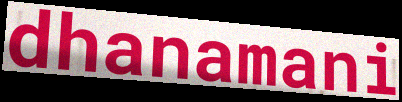
dhanamani